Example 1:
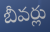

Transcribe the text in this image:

బీవర్లు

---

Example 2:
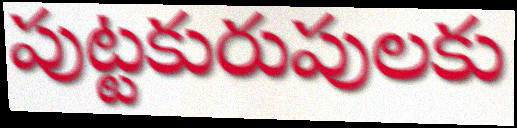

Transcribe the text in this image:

పుట్టకురుపులకు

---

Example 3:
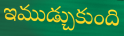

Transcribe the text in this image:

ఇముడ్చుకుంది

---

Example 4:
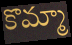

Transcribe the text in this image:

కొమ్మా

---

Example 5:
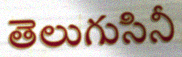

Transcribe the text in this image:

తెలుగుసినీ